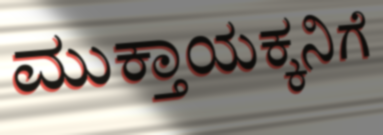
ಮುಕ್ತಾಯಕ್ಕನಿಗೆ